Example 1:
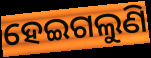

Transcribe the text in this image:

ହେଇଗଲୁଣି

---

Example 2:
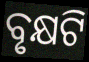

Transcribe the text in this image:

ବୃକ୍ଷଟି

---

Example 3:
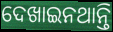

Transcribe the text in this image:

ଦେଖାଇନଥାନ୍ତି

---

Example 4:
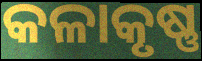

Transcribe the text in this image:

କଳାକୃଷ୍ଣ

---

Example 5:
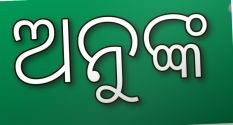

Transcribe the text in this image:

ଅନୁଙ୍କ